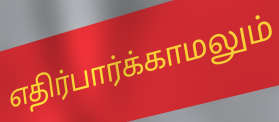
எதிர்பார்க்காமலும்